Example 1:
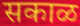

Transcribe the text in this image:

सकाळ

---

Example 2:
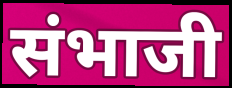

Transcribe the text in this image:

संभाजी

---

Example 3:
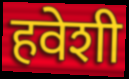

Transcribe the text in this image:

हवेशी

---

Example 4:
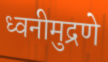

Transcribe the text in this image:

ध्वनीमुद्रणे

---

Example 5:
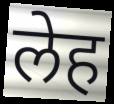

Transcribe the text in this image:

लेह